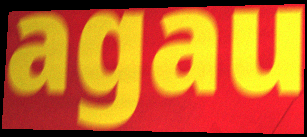
agau